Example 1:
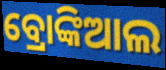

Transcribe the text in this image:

ବ୍ରୋଙ୍କିଆଲ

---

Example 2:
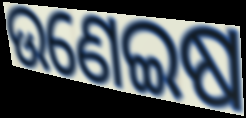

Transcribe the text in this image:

ଉଣେଇଷ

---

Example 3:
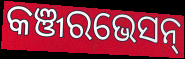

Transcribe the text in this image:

କଞ୍ଜରଭେସନ୍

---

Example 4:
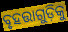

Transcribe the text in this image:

ବୃହତ୍ତାଗୁଡ଼ିକୁ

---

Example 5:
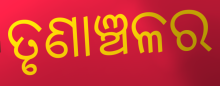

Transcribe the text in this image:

ତୃଣାଞ୍ଚଳର